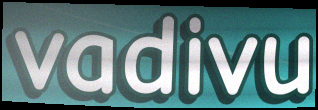
vadivu